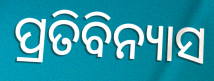
ପ୍ରତିବିନ୍ୟାସ